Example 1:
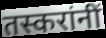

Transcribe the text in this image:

तस्करांनीं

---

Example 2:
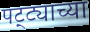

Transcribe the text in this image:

पट्ट्याच्या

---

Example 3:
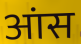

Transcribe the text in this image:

आंस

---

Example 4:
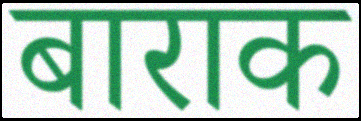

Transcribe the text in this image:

बाराक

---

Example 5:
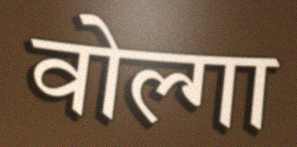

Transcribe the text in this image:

वोल्गा